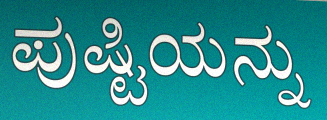
ಪುಷ್ಟಿಯನ್ನು